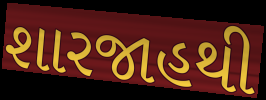
શારજાહથી